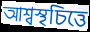
আশ্বস্থচিত্তে